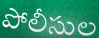
పోలీసుల